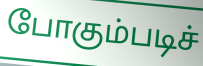
போகும்படிச்